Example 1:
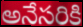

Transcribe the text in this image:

అనేసరికి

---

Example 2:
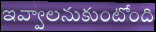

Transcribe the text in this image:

ఇవ్వాలనుకుంటోంది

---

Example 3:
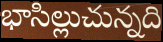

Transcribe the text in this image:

భాసిల్లుచున్నది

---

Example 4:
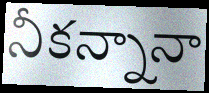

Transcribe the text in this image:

నీకన్నానా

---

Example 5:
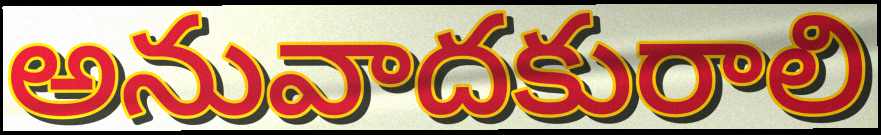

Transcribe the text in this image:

అనువాదకురాలి